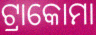
ଟ୍ରାକୋମା